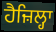
ਹੈਜ਼ਿਲ੍ਹਾ